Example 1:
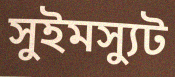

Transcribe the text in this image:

সুইমস্যুট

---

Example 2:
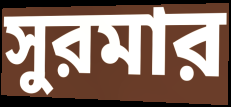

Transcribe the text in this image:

সুরমার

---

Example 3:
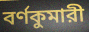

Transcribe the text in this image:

বর্ণকুমারী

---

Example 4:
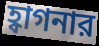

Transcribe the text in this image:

হ্বাগনার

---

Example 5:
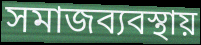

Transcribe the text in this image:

সমাজব্যবস্থায়